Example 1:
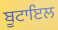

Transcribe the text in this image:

ਬੂਟਾਇਲ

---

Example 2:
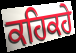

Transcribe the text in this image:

ਕਹਿਕਹੇ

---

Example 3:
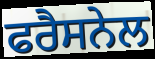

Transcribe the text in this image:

ਫਰੈਸਨੇਲ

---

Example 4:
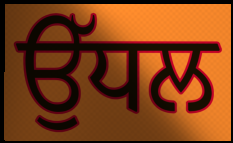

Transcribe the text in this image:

ਉੱਧਲ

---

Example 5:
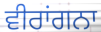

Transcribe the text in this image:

ਵੀਰਾਂਗਨਾ